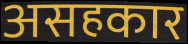
असहकार